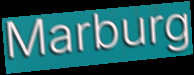
Marburg